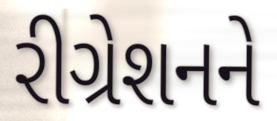
રીગ્રેશનને